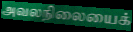
அவலநிலையைக்